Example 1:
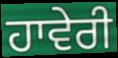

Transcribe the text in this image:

ਹਾਵੇਰੀ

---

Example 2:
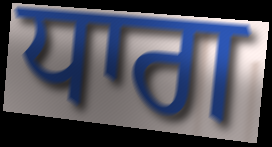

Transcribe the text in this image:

ਧਾਗ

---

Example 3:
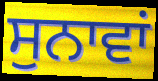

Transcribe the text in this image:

ਸੁਨਾਵਾਂ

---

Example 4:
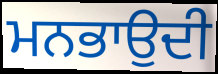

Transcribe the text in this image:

ਮਨਭਾਉਦੀ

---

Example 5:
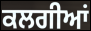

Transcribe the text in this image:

ਕਲਗੀਆਂ